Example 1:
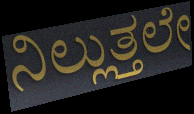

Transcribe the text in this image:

ನಿಲ್ಲುತ್ತಲೇ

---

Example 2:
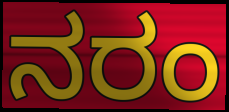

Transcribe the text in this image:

ನರಂ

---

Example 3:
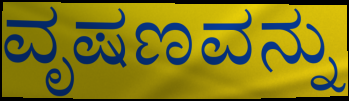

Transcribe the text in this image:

ವೃಷಣವನ್ನು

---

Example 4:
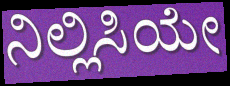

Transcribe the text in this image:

ನಿಲ್ಲಿಸಿಯೇ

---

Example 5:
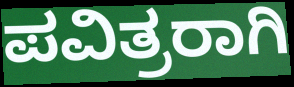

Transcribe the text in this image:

ಪವಿತ್ರರಾಗಿ